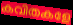
കവിതകളേ